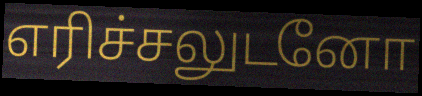
எரிச்சலுடனோ